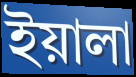
ইয়ালা